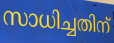
സാധിച്ചതിന്